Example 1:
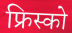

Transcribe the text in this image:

फ्रिस्को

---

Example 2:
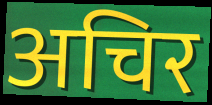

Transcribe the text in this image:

अचिर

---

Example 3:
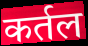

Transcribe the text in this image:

कर्तल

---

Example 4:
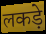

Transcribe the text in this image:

लकड़े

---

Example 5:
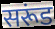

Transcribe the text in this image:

सरूंड